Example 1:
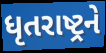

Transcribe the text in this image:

ધૃતરાષ્ટ્રને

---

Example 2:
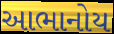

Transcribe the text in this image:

આભાનોય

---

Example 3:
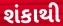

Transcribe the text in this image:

શંકાથી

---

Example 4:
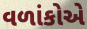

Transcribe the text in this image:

વળાંકોએ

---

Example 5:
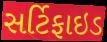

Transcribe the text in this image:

સર્ટિફાઇડ